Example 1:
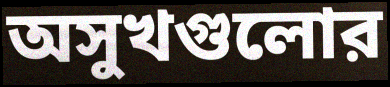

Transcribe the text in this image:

অসুখগুলোর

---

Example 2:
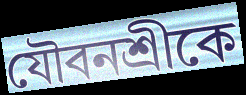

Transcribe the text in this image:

যৌবনশ্রীকে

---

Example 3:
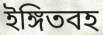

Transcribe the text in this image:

ইঙ্গিতবহ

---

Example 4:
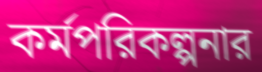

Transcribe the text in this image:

কর্মপরিকল্পনার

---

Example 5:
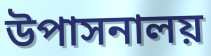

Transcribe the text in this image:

উপাসনালয়